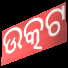
ଉତ୍କଟ